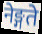
नेङ्गते